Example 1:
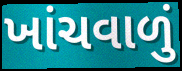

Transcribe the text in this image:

ખાંચવાળું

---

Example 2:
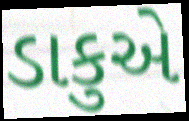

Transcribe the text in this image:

ડાકુએ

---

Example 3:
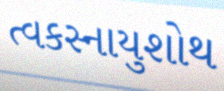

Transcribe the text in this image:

ત્વકસ્નાયુશોથ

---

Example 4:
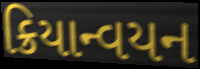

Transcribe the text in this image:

ક્રિયાન્વયન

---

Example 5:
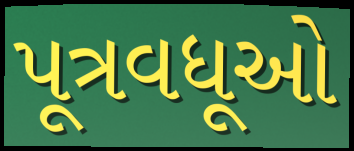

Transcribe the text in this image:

પૂત્રવધૂઓ